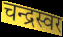
चन्द्रस्वर